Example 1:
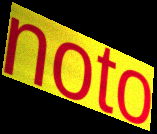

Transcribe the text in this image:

noto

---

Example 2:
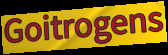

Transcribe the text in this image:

Goitrogens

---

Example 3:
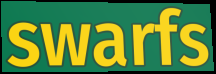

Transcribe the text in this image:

swarfs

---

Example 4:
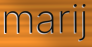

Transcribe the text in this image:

marij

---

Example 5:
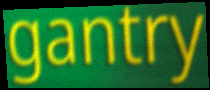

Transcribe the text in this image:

gantry